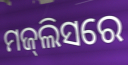
ମଜ୍‌ଲିସରେ